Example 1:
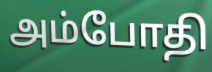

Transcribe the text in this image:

அம்போதி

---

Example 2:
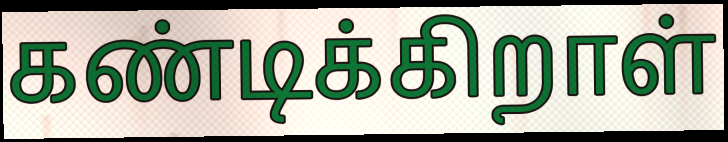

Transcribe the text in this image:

கண்டிக்கிறாள்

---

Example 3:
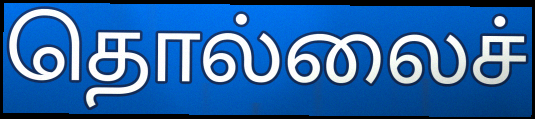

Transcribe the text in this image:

தொல்லைச்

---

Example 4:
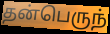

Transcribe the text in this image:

தன்பெருந்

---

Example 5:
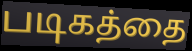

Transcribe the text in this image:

படிகத்தை